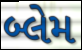
બ્લેમ